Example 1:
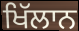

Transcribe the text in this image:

ਖਿੱਲਾਨ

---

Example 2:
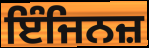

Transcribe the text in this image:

ਇੰਜਿਨਜ਼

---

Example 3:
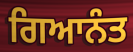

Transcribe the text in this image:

ਗਿਆਨੰਤ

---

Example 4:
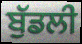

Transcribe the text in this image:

ਬੁੱਡਲੀ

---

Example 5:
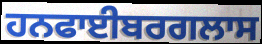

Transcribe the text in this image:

ਹਨਫਾਈਬਰਗਲਾਸ